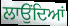
ਲਾਉਂਦਿਆਂ